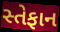
સ્તેફાન